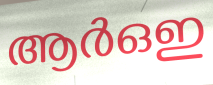
ആർഒഇ